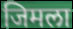
जिमला